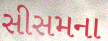
સીસમના